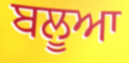
ਬਲੂਆ